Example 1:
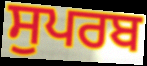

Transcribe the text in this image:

ਸੁਪਰਬ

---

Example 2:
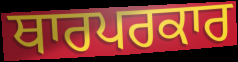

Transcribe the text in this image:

ਥਾਰਪਰਕਾਰ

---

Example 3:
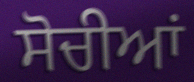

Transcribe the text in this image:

ਸੋਚੀਆਂ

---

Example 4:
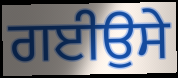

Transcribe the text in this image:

ਗਈਉਸੇ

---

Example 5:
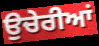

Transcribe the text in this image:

ਉਚੇਰੀਆਂ